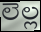
లెల్ల